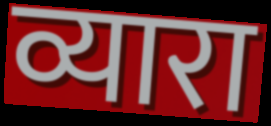
व्यारा